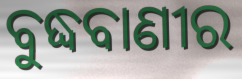
ବୁଦ୍ଧବାଣୀର